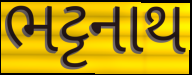
ભટ્ટનાથ